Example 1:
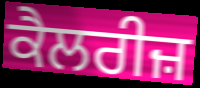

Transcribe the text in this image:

ਕੈਲਰੀਜ਼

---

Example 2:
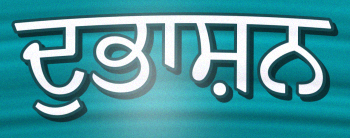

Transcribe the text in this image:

ਦੁਭਾਸ਼ਨ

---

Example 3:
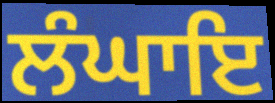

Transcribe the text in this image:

ਲੰਘਾਇ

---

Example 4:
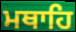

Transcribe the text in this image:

ਮਥਾਹਿ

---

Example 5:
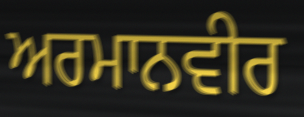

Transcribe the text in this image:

ਅਰਮਾਨਵੀਰ